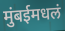
मुंबईमधलं